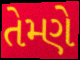
તેમ્ણે